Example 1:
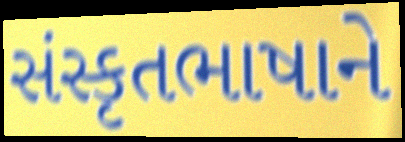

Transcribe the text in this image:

સંસ્કૃતભાષાને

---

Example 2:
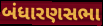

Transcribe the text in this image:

બંધારણસભા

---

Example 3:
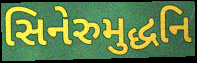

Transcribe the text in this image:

સિનેરુમુદ્ધનિ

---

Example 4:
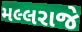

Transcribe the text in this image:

મલ્લરાજે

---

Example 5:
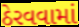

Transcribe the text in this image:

ઠેરવવામાં